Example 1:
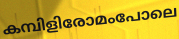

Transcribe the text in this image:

കമ്പിളിരോമംപോലെ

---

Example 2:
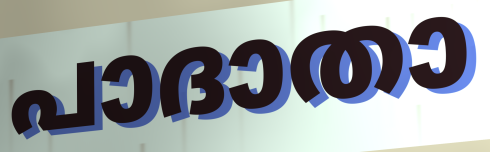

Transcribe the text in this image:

പാദാതാ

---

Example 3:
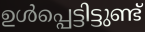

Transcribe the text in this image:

ഉൾപ്പെട്ടിട്ടുണ്ട്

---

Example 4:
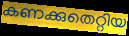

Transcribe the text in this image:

കണക്കുതെറ്റിയ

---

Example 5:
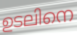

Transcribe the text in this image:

ഉടലിനെ